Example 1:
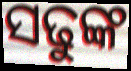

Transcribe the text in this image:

ସଢୁଙ୍କ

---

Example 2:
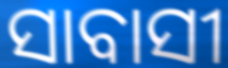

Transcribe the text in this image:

ସାବାସୀ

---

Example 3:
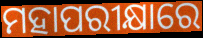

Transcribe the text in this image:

ମହାପରୀକ୍ଷାରେ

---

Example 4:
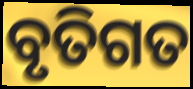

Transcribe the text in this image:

ବୃତିଗତ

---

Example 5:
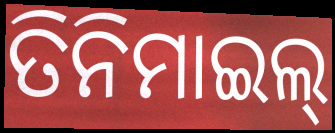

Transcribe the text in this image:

ତିନିମାଇଲ୍